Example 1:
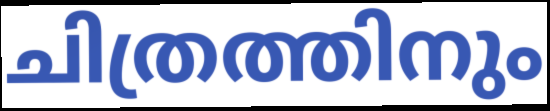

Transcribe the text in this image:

ചിത്രത്തിനും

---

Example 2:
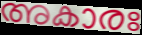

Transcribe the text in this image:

അകാരഃ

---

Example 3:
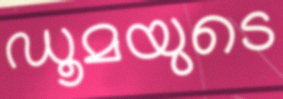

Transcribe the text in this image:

ഡൂമയുടെ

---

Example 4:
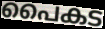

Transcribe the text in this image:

പൈകട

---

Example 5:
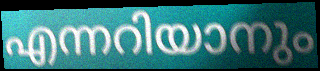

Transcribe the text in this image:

എന്നറിയാനും